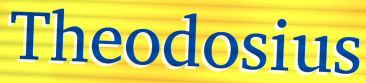
Theodosius